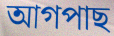
আগপাছ